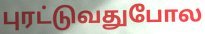
புரட்டுவதுபோல